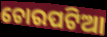
ଚୋରପଟିଆ